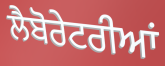
ਲੈਬੋਰੇਟਰੀਆਂ